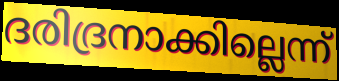
ദരിദ്രനാക്കില്ലെന്ന്